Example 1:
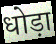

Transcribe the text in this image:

धोड़ा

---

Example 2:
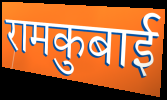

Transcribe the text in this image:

रामकुबाई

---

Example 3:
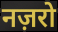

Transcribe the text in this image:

नज़रो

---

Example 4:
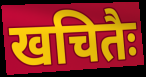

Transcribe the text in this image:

खचितैः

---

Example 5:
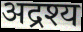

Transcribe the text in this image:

अद्रश्य